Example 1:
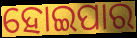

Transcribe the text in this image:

ହୋଇପାର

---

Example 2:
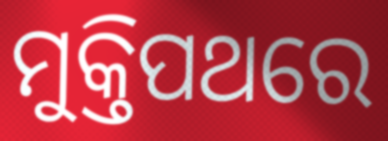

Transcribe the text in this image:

ମୁକ୍ତିପଥରେ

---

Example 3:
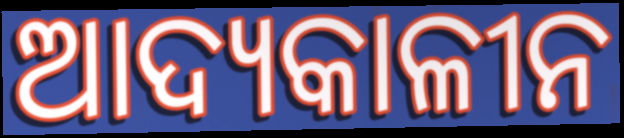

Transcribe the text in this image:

ଆଦ୍ୟକାଳୀନ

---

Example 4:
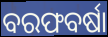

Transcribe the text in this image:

ବରଫବର୍ଷା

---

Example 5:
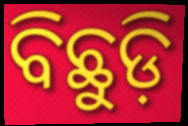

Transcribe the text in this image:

ବିଛୁଡ଼ି